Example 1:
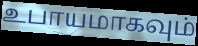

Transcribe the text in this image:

உபாயமாகவும்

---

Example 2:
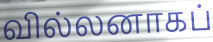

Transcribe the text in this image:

வில்லனாகப்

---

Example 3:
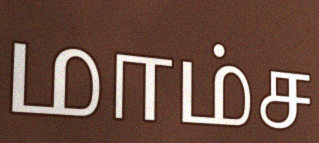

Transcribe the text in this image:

மாம்ச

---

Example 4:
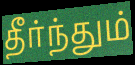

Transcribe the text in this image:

தீர்ந்தும்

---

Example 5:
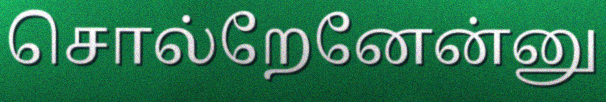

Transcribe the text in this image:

சொல்றேனேன்னு